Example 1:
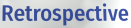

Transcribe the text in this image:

Retrospective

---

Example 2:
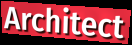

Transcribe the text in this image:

Architect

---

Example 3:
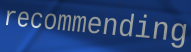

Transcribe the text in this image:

recommending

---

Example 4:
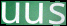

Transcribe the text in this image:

uus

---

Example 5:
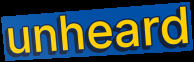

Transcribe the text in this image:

unheard